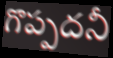
గొప్పదనీ